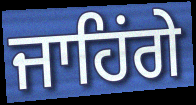
ਜਾਹਿਂਗੇ